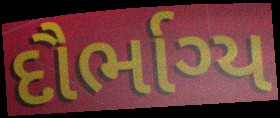
દૌર્ભાગ્ય